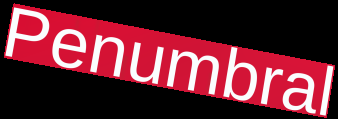
Penumbral